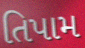
તિપામ